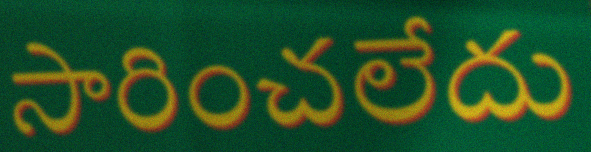
సారించలేదు